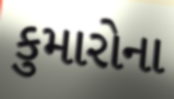
કુમારોના